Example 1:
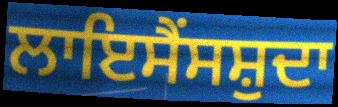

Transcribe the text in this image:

ਲਾਇਸੈਂਸਸ਼ੁਦਾ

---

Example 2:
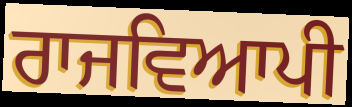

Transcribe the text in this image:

ਰਾਜਵਿਆਪੀ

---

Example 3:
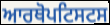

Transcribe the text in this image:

ਆਰਥੋਪਟਿਸਟਸ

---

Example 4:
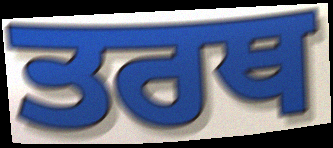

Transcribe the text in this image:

ਤਰਥ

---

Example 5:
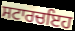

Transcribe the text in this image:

ਸਟਾਰਚਇਹ